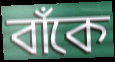
বাঁকে